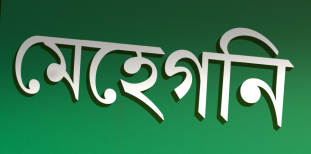
মেহেগনি